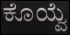
ಕೊಯ್ವೆ